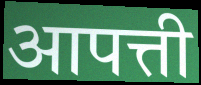
आपत्ती